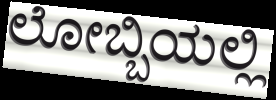
ಲೋಬ್ಬಿಯಲ್ಲಿ